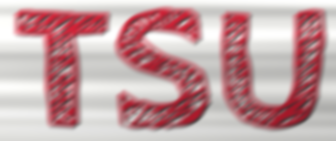
TSU